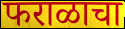
फराळाचा